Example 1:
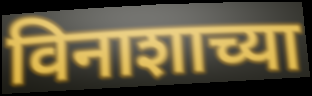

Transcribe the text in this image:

विनाशाच्या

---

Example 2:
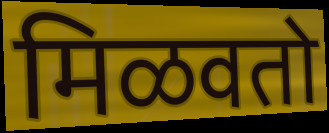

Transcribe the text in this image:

मिळवतो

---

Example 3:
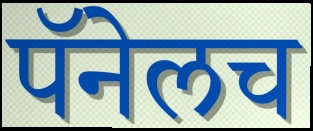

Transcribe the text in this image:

पॅनेलच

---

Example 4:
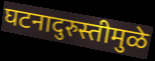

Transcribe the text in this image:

घटनादुरुस्तीमुळे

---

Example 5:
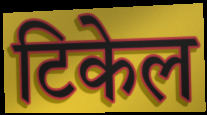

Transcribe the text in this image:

टिकेल